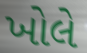
ખોલે